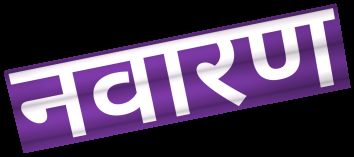
नवारण